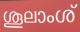
ശൂലാംശ്